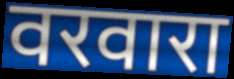
वरवारा